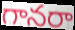
గానరా